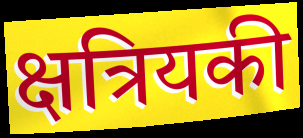
क्षत्रियकी